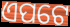
ଏପଟେ